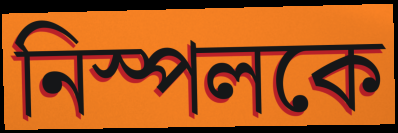
নিস্পলকে